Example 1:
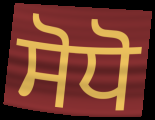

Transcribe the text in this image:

ਸੋਧੋ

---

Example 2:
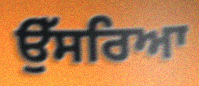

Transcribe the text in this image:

ਉੱਸਰਿਆ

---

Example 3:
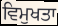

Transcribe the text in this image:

ਵਿਮੁਖਤਾ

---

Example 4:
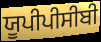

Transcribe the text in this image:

ਯੂਪੀਪੀਸੀਬੀ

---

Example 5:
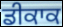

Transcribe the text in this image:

ਡੀਕਾਕ